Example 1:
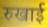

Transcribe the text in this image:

रुखाई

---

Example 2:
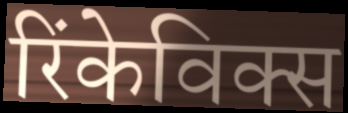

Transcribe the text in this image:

रिंकेविक्स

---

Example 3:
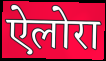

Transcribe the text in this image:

ऐलोरा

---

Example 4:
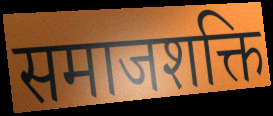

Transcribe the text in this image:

समाजशक्ति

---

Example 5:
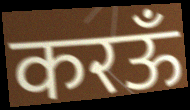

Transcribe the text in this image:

करऊँ